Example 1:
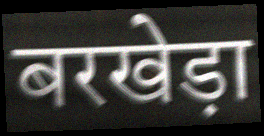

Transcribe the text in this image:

बरखेड़ा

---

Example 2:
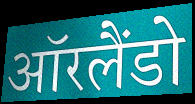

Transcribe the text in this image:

ऑरलैंडो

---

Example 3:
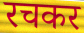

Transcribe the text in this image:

रचकर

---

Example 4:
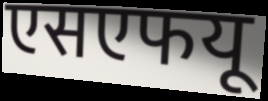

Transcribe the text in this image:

एसएफयू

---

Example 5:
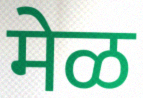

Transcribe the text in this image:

मेळ